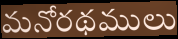
మనోరథములు